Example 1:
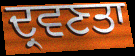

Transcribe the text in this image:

ਦ੍ਰਵਣਤਾ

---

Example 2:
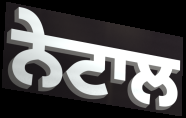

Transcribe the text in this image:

ਨੇਟਾਲ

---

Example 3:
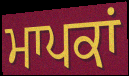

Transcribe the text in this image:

ਮਾਪਕਾਂ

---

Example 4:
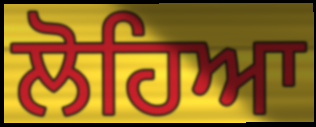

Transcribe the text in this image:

ਲੋਹਿਆ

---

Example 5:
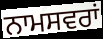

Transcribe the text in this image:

ਨਾਮਸਵਰਾਂ